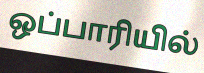
ஒப்பாரியில்